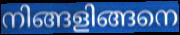
നിങ്ങളിങ്ങനെ